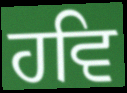
ਹਵਿ